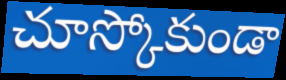
చూస్కోకుండా